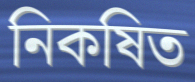
নিকষিত